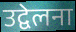
उद्वेलना